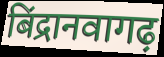
बिंद्रानवागढ़